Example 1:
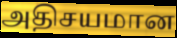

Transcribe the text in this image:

அதிசயமான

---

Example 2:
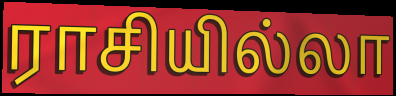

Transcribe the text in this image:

ராசியில்லா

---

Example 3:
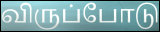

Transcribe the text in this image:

விருப்போடு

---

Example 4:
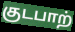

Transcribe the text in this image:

குடபாற்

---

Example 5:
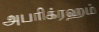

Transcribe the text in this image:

அபரிக்ரஹம்